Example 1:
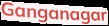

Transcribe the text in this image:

Ganganagar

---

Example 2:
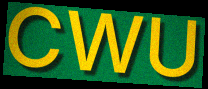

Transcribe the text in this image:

CWU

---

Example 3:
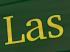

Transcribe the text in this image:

Las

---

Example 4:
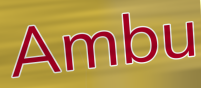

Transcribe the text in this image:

Ambu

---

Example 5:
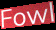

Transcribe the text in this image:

Fowl